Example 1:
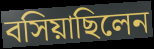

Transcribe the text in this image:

বসিয়াছিলেন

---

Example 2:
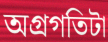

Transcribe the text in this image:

অগ্রগতিটা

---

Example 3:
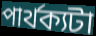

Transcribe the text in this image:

পার্থক্যটা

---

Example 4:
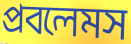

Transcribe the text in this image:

প্রবলেমস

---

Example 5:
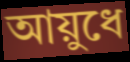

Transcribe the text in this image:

আয়ুধে